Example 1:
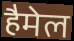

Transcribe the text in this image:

हैमेल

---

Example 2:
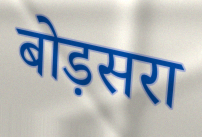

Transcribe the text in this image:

बोड़सरा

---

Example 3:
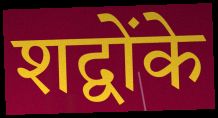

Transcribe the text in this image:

शद्वोंके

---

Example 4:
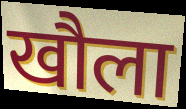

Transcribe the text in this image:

खौला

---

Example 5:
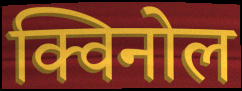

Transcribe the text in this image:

क्विनोल